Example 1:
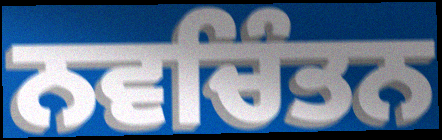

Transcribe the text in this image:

ਨਵਚਿੰਤਨ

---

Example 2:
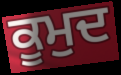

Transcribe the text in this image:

ਕੂਮੁਦ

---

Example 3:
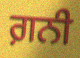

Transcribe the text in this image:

ਗ਼ਨੀ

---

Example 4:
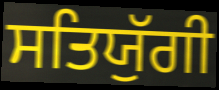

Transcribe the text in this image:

ਸਤਿਯੁੱਗੀ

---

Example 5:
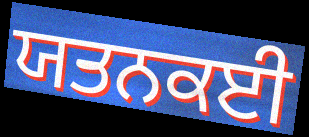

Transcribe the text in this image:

ਯਤਨਕਈ